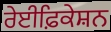
ਰੇਈਫ਼ਿਕੇਸ਼ਨ